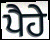
ਪੈਹੇ